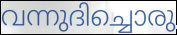
വന്നുദിച്ചൊരു